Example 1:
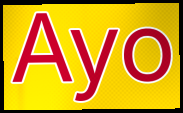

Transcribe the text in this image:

Ayo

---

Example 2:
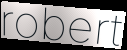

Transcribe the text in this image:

robert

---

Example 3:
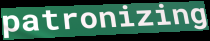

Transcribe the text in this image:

patronizing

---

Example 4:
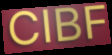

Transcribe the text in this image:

CIBF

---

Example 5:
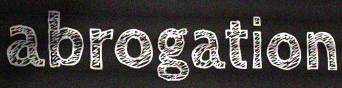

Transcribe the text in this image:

abrogation